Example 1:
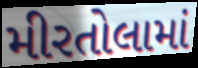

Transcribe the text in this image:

મીરતોલામાં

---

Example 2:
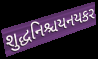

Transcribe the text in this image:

શુદ્ધનિશ્ચયનયકર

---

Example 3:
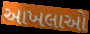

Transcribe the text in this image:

આખલાઓ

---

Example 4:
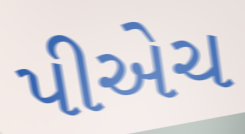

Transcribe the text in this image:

પીએચ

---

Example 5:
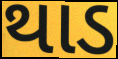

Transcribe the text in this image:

થાડ